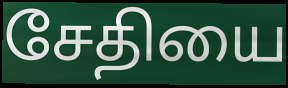
சேதியை